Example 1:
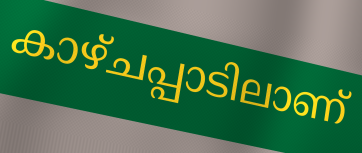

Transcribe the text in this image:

കാഴ്ചപ്പാടിലാണ്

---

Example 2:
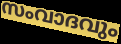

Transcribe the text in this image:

സംവാദവും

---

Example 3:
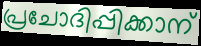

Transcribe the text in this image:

പ്രചോദിപ്പിക്കാന്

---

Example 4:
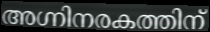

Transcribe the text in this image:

അഗ്നിനരകത്തിന്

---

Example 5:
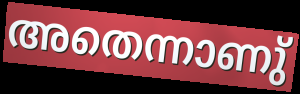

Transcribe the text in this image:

അതെന്നാണു്